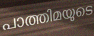
പാത്തിമയുടെ